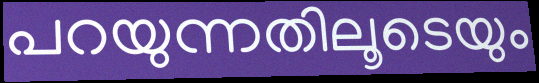
പറയുന്നതിലൂടെയും